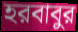
হরবাবুর